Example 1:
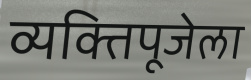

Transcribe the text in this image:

व्यक्तिपूजेला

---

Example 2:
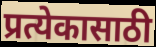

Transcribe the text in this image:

प्रत्येकासाठी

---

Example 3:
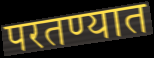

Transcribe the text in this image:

परतण्यात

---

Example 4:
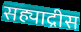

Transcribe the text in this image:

सह्याद्रीस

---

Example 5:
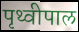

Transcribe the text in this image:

पृथ्वीपाल